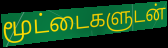
மூட்டைகளுடன்